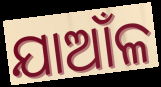
ଯାଆଁଳ